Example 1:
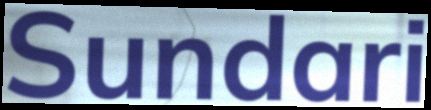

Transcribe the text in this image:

Sundari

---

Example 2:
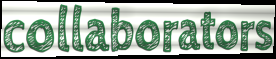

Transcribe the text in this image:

collaborators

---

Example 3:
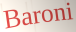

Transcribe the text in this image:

Baroni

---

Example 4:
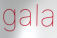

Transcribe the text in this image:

gala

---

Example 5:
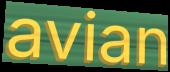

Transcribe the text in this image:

avian